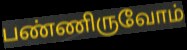
பண்ணிருவோம்